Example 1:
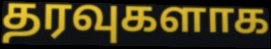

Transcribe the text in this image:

தரவுகளாக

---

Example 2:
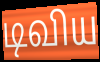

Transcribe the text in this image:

டிவிய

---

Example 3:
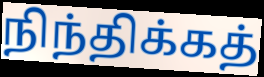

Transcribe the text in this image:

நிந்திக்கத்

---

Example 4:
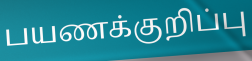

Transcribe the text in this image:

பயணக்குறிப்பு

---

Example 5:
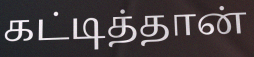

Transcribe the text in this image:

கட்டித்தான்